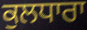
ਕੁਲਧਾਰਾ